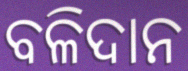
ବଳିଦାନ